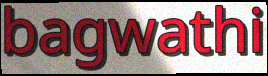
bagwathi